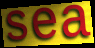
sea